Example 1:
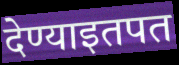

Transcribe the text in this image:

देण्याइतपत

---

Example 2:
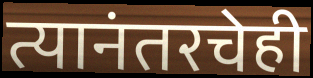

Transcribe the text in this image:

त्यानंतरचेही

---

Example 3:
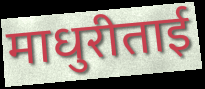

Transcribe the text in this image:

माधुरीताई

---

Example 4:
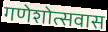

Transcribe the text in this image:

गणेशोत्सवास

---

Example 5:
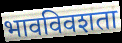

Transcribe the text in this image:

भावविवशता